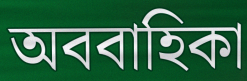
অববাহিকা